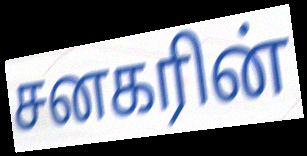
சனகரின்